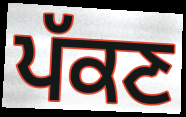
ਪੱਕਣ